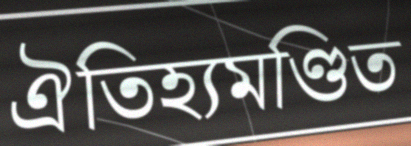
ঐতিহ্যমণ্ডিত